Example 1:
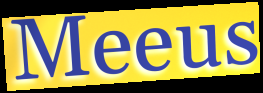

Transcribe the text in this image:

Meeus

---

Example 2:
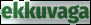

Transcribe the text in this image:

ekkuvaga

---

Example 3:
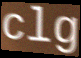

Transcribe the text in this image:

clg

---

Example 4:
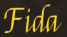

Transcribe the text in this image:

Fida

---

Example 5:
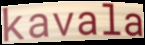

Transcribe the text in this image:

kavala